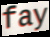
fay